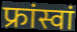
फ्रांस्वां